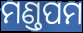
ମଣ୍ଡପମ